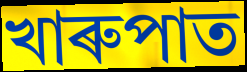
খাৰুপাত